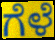
ಗೆಳೆ